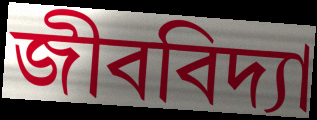
জীববিদ্যা